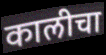
कालीचा